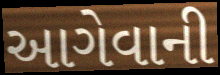
આગેવાની